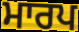
ਮਾਰਪ